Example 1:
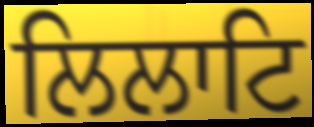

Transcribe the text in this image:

ਲਿਲਾਟਿ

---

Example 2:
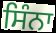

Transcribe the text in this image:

ਸਿੰਨਾ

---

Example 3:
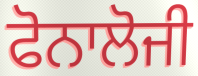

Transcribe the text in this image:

ਫੋਨਾਲੋਜੀ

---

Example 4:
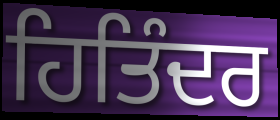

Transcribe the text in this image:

ਹਿਤਿੰਦਰ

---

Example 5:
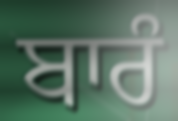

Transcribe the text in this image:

ਬਾਰੰ